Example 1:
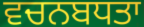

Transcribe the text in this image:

ਵਚਨਬਧਤਾ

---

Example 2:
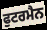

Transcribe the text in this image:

ਫੁਟਰਮੈਨ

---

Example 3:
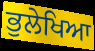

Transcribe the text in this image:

ਭੁਲੇਖਿਆ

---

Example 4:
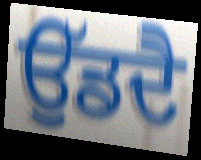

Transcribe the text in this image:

ਉੱਡਦੈ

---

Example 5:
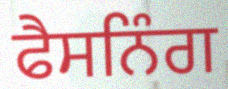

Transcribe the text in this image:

ਫੈਸਨਿੰਗ